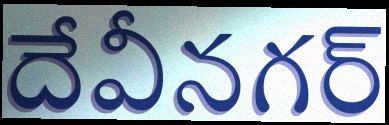
దేవీనగర్